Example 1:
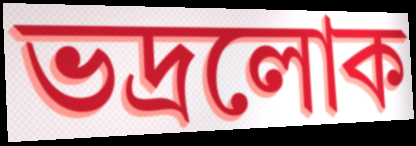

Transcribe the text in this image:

ভদ্ৰলোক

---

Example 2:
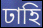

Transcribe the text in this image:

ঢাহি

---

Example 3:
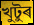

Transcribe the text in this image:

খুটুৰ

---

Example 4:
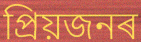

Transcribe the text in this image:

প্ৰিয়জনৰ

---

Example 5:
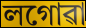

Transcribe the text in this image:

লগোৱা